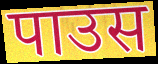
पाउस